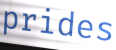
prides